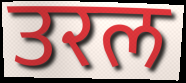
उरल